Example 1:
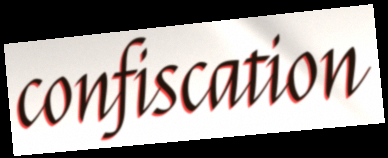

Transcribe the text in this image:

confiscation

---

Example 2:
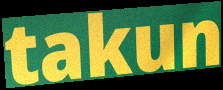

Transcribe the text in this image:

takun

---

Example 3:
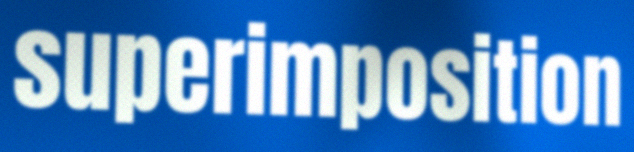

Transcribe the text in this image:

superimposition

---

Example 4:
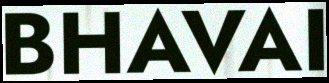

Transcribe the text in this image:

BHAVAI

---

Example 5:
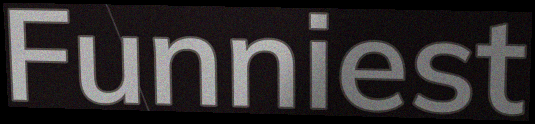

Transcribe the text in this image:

Funniest